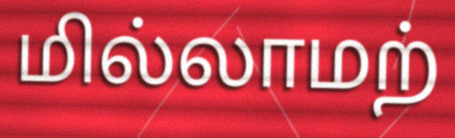
மில்லாமற்